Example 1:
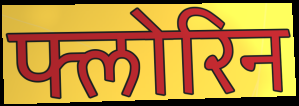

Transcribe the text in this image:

फ्लोरिन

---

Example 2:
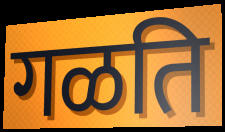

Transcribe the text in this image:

गळति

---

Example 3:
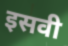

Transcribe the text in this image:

इसवी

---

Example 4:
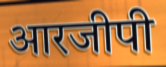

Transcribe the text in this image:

आरजीपी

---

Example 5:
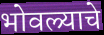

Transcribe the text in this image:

भोवल्याचे